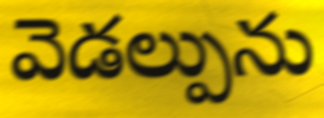
వెడల్పును